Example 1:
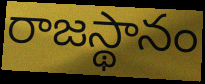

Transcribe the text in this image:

రాజస్థానం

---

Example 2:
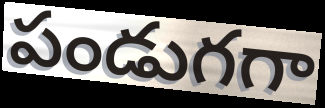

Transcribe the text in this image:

పండుగగా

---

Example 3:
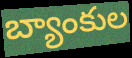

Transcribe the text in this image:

బ్యాంకుల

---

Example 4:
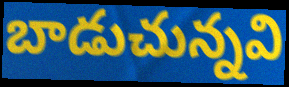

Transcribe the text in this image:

బాడుచున్నవి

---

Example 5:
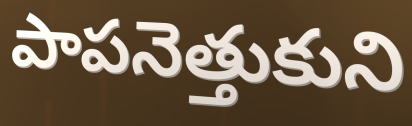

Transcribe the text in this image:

పాపనెత్తుకుని